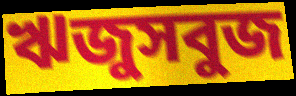
ঋজুসবুজ